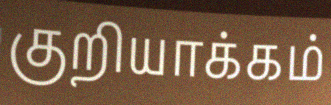
குறியாக்கம்